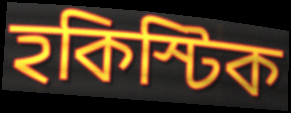
হকিস্টিক